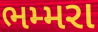
ભમ્મરા